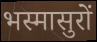
भस्मासुरों